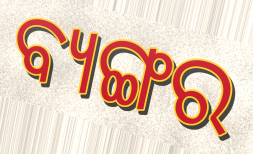
ବ୍ୟଙ୍ଗର